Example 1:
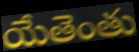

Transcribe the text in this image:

యేతెంతు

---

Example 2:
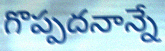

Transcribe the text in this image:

గొప్పదనాన్నే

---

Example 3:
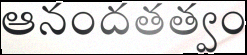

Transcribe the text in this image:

ఆనందతత్వం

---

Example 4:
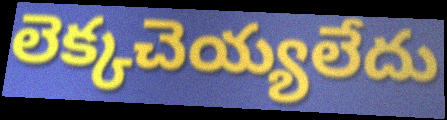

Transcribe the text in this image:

లెక్కచెయ్యలేదు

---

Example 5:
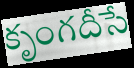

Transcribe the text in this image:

కృంగదీసే